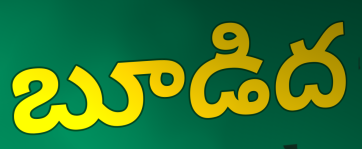
బూడిద